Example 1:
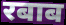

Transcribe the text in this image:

रबाब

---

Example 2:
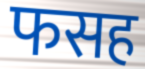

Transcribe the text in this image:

फसह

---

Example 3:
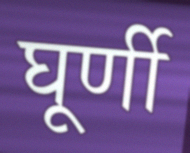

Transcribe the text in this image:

घूर्णी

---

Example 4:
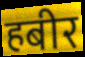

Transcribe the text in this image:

हबीर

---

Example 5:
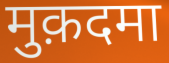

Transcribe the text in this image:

मुक़दमा